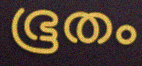
ഭൂതം